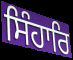
ਸਿੰਹਾਰਿ